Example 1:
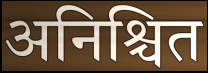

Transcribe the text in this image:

अनिश्चित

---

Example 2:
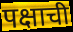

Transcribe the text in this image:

पक्षाची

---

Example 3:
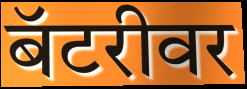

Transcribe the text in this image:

बॅटरीवर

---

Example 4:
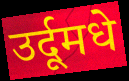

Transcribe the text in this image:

उर्दूमधे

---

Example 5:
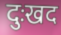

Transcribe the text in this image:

दुःखद